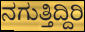
ನಗುತ್ತಿದ್ದಿರಿ